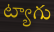
ట్యాగు